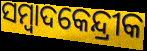
ସମ୍ୱାଦକେନ୍ଦ୍ରୀକ